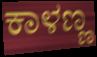
ಕಾಳಣ್ಣ